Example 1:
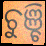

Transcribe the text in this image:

ଚୁଞ୍ଚି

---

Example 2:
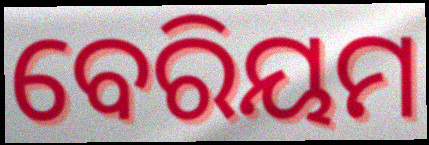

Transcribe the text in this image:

ବେରିୟମ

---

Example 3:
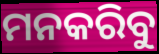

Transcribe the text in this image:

ମନକରିବୁ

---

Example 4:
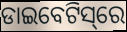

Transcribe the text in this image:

ଡାଇବେଟିସ୍‌ରେ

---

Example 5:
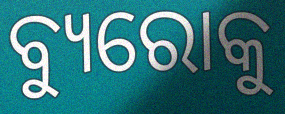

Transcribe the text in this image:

ବ୍ୟୁରୋକୁ